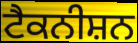
ਟੈਕਨੀਸ਼ਨ